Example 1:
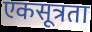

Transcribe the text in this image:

एकसूत्रता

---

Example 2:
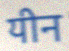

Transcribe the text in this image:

यीन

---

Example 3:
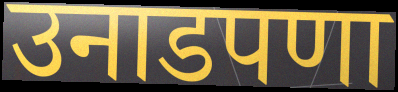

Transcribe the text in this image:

उनाडपणा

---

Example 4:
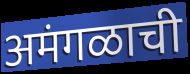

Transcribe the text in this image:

अमंगळाची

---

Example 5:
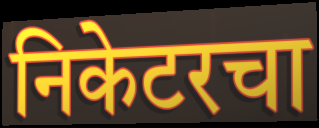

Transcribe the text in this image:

निकेटरचा